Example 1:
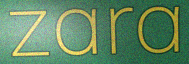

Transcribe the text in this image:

zara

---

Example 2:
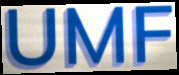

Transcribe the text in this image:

UMF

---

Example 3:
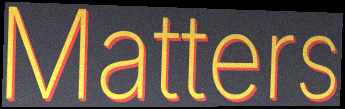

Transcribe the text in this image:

Matters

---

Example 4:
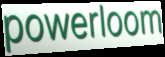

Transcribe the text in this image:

powerloom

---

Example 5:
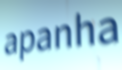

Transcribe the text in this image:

apanha